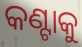
କଣ୍ଟାକୁ